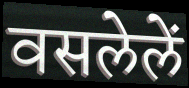
वसलेलें